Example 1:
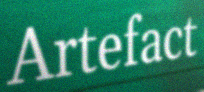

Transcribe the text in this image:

Artefact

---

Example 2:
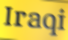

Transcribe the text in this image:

Iraqi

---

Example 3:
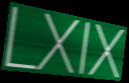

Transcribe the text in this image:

LXIX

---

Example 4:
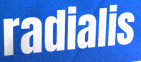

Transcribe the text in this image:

radialis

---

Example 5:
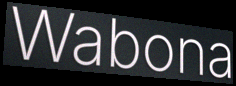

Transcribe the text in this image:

Wabona